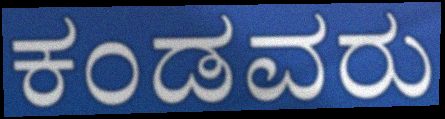
ಕಂಡವರು